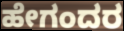
ಹೇಗಂದರ